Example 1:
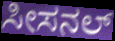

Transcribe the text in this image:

ಸೀಸನಲ್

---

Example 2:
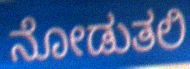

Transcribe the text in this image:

ನೋಡುತಲಿ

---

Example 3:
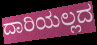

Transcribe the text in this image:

ದಾರಿಯಲ್ಲದ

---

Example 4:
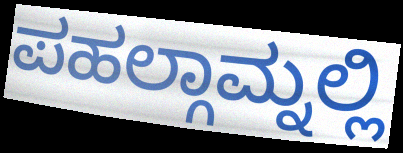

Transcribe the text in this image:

ಪಹಲ್ಗಾಮ್ನಲ್ಲಿ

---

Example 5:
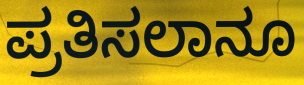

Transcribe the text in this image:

ಪ್ರತಿಸಲಾನೂ